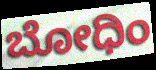
ಬೋಧಿಂ